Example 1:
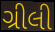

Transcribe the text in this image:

ગ્રીલી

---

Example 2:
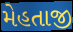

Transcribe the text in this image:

મેહતાજી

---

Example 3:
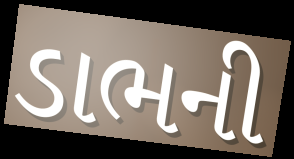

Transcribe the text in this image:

ડાભની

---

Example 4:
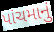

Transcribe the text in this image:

પાંચમાનું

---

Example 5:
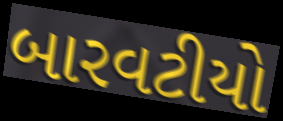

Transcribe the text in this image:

બારવટીયો